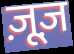
ज़ूज़